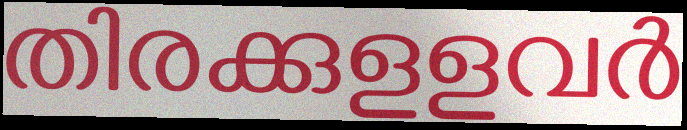
തിരക്കുളളവർ